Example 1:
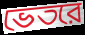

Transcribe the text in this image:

ভেতরে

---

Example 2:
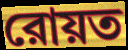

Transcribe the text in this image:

রোয়ত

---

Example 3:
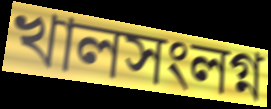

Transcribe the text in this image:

খালসংলগ্ন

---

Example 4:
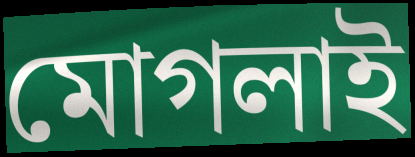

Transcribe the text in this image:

মোগলাই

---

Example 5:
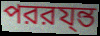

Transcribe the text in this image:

পররয্ন্ত